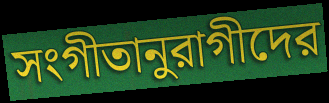
সংগীতানুরাগীদের